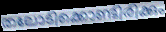
തലോടിക്കൊണ്ടിരിക്കും